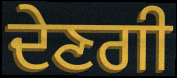
ਦੇਣਗੀ